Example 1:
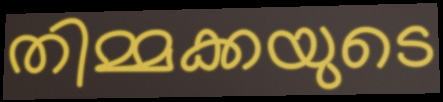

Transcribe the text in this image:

തിമ്മക്കയുടെ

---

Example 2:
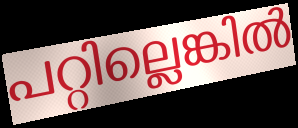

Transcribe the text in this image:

പറ്റില്ലെങ്കിൽ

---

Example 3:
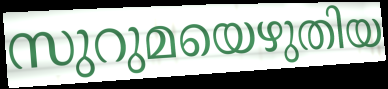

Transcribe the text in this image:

സുറുമയെഴുതിയ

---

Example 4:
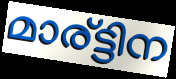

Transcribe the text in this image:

മാര്ട്ടിന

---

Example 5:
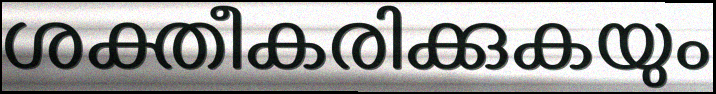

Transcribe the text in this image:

ശക്തീകരിക്കുകയും